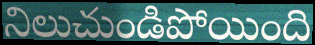
నిలుచుండిపోయింది